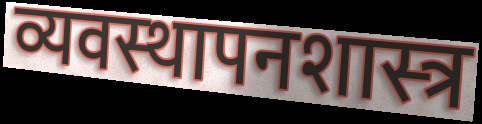
व्यवस्थापनशास्त्र